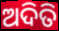
ଅଦିତି